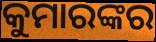
କୁମାରଙ୍କର